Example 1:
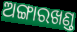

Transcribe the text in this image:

ଅଙ୍ଗାରଖଣ୍ଡ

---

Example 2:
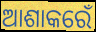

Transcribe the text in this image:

ଆଶାକରେଁ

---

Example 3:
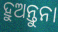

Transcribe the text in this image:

ହୁଅନ୍ତୁନା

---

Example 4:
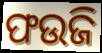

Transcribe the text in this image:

ଫଉଜି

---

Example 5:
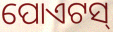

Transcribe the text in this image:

ପୋଏଟସ୍